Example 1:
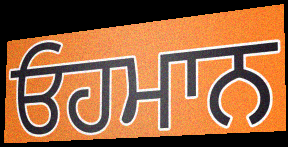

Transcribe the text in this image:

ਓਹਮਾਨ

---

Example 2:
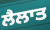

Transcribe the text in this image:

ਲੈਲਾਤ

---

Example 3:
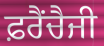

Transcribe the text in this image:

ਫ਼ਰੈਂਚੈਜੀ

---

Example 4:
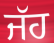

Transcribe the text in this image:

ਜੱਹ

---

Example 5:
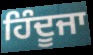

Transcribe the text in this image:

ਹਿੰਦੂਜਾ